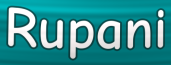
Rupani